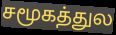
சமூகத்துல